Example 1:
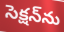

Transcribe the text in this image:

సెక్షన్‌ను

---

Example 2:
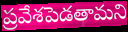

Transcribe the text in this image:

ప్రవేశపెడతామని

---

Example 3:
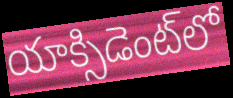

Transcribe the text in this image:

యాక్సిడెంట్‌లో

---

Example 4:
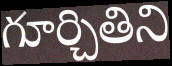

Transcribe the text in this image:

గూర్చితిని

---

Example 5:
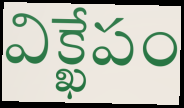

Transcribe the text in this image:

విక్ఖేపం